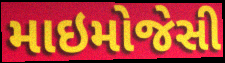
માઇમોજેસી